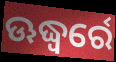
ଊଦ୍ଧ୍ୱର୍ରେ